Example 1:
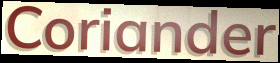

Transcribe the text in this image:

Coriander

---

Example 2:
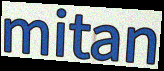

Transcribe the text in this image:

mitan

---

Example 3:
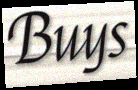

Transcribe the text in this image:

Buys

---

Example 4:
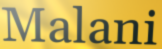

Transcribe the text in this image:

Malani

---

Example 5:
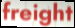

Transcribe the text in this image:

freight